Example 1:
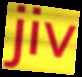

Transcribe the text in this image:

jiv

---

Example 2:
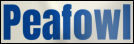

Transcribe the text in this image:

Peafowl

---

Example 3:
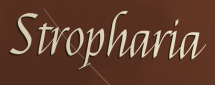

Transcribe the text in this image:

Stropharia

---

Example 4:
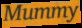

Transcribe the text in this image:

Mummy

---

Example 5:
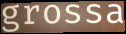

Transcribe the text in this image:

grossa